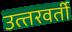
उत्‍तरवर्ती